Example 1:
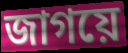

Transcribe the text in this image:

জাগয়ে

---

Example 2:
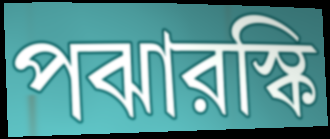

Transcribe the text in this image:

পঝারস্কি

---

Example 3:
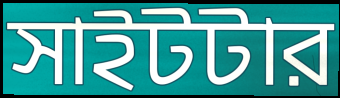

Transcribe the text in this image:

সাইটটার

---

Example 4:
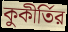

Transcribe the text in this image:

কুকীর্তির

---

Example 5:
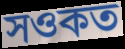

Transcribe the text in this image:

সওকত